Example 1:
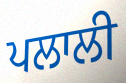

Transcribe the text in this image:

ਪਲਾਲੀ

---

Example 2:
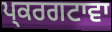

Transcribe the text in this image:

ਪ੍ਕਰਗਟਾਵਾ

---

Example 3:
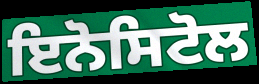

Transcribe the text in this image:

ਇਨੋਸਿਟੋਲ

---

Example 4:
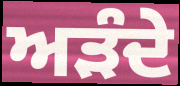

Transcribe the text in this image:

ਅੜੰਦੇ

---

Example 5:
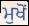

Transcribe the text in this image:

ਮੁਖੋਂ